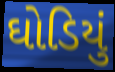
ઘોડિયું